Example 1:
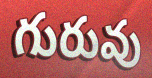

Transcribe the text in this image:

గురువు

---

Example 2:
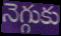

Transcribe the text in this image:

నెగ్గుకు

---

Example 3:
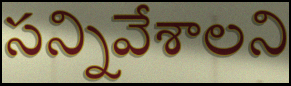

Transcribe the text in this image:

సన్నివేశాలని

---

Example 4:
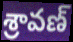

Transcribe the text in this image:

శ్రావణ్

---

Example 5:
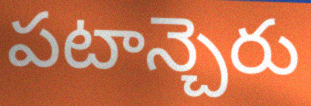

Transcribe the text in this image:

పటాన్చెరు